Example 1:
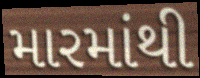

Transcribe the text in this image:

મારમાંથી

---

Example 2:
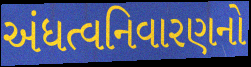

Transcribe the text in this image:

અંધત્વનિવારણનો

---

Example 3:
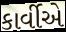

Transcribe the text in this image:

કાર્વીએ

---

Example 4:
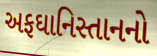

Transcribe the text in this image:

અફઘાનિસ્તાનનો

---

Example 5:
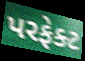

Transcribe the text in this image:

પરફેક્ટ